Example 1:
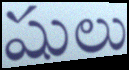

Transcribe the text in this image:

షులు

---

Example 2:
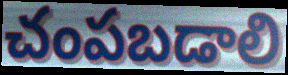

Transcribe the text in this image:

చంపబడాలి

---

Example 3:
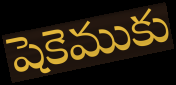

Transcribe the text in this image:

షెకెముకు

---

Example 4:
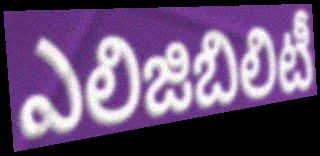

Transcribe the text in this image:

ఎలిజిబిలిటీ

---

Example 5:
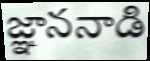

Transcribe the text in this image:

జ్ఞాననాడి